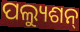
ପଲ୍ୟୁଶନ୍